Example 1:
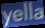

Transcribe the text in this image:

yella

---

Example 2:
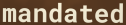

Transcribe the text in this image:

mandated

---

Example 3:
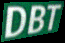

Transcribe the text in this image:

DBT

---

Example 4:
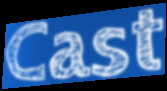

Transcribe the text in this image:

Cast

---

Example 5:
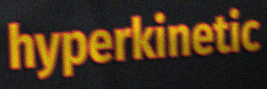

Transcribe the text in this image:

hyperkinetic